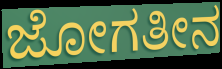
ಜೋಗತೀನ